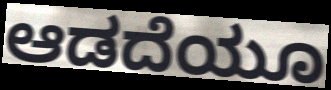
ಆಡದೆಯೂ